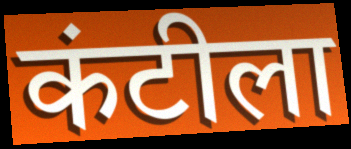
कंटीला